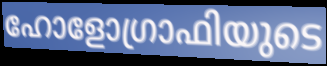
ഹോളോഗ്രാഫിയുടെ